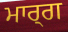
ਮਾਰ੍ਗ